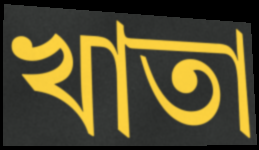
খাতা